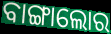
ବାଙ୍ଗାଲୋର